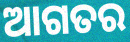
ଆଗତର